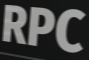
RPC